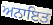
ਅਨਾਇਤ